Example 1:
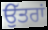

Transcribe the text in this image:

ਉੱਤਰਾਂ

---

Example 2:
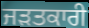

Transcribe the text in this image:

ਜੜਤਕਾਰੀ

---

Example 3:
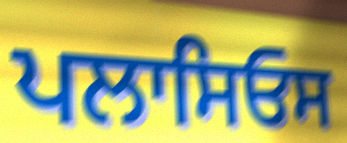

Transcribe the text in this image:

ਪਲਾਸਿਓਸ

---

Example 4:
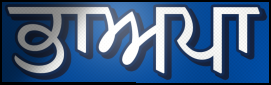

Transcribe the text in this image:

ਭਾਅਪਾ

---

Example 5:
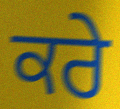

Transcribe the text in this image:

ਕਰੇ